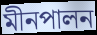
মীনপালন